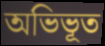
অভিভূত